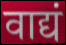
वाद्यं